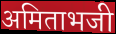
अमिताभजी